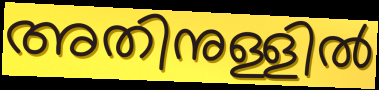
അതിനുള്ളിൽ